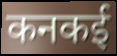
कनकई